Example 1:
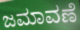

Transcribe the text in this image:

ಜಮಾವಣೆ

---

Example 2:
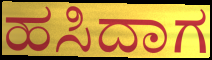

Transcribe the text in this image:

ಹಸಿದಾಗ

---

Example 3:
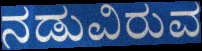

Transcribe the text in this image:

ನಡುವಿರುವ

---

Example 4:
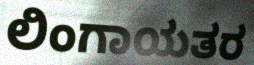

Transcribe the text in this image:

ಲಿಂಗಾಯತರ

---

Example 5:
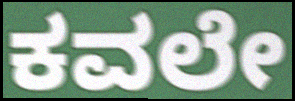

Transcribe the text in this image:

ಕವಲೇ